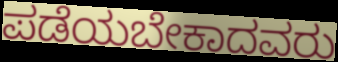
ಪಡೆಯಬೇಕಾದವರು